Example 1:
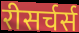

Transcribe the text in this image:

रीसर्चर्स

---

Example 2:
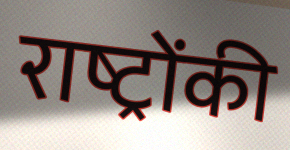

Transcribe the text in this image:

राष्ट्रोंकी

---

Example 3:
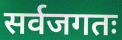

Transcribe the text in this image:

सर्वजगतः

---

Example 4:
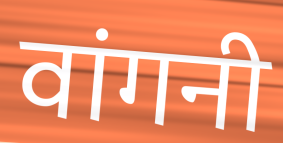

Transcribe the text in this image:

वांगनी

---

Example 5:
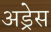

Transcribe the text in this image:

अड्रेस